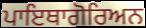
ਪਾਇਥਾਗੋਰਿਅਨ